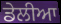
ਡੇਲੀਆ